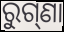
ରୁଗ୍‌ଣା